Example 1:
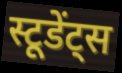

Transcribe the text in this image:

स्टूडेंट्स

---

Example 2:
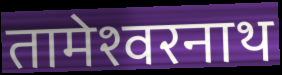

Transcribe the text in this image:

तामेश्वरनाथ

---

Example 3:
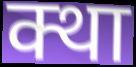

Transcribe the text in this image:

क्था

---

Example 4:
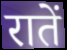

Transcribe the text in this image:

रातें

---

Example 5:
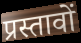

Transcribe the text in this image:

प्रस्तावों